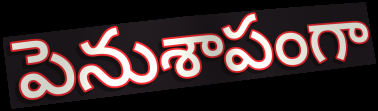
పెనుశాపంగా